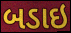
બડાઇ